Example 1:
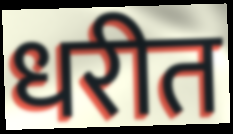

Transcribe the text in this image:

धरीत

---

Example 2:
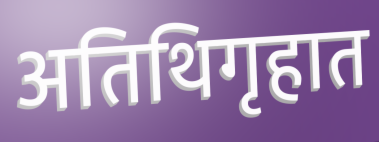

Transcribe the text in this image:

अतिथिगृहात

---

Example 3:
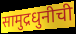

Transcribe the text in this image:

सामुद्रधुनीची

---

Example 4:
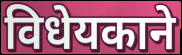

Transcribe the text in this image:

विधेयकाने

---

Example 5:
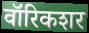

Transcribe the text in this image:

वॉरिकशर